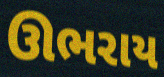
ઊભરાય